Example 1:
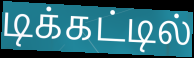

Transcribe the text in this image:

டிக்கட்டில்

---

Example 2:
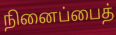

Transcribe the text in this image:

நினைப்பைத்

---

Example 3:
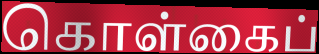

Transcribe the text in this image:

கொள்கைப்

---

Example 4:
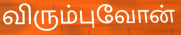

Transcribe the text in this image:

விரும்புவோன்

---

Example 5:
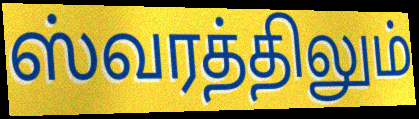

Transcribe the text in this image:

ஸ்வரத்திலும்